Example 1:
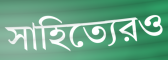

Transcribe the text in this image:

সাহিত্যেরও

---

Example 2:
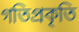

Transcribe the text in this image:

গতিপ্রকৃতি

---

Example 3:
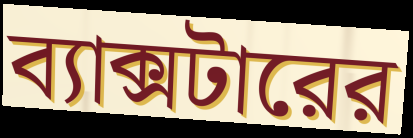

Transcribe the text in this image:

ব্যাক্সটারের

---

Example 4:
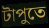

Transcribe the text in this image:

টাপুতে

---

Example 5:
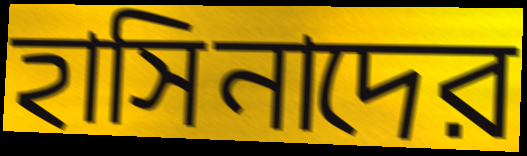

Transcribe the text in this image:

হাসিনাদের